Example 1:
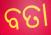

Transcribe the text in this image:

ବତା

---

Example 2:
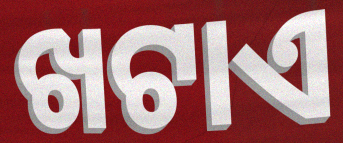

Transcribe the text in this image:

ଖଟାଏ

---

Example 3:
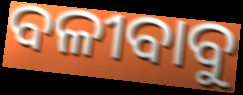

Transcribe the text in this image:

ବଳୀବାବୁ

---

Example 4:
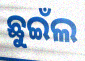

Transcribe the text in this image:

ଛୁଇଁଲ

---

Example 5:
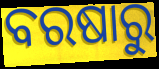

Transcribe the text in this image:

ବରଷାରୁ